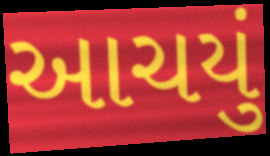
આચયું